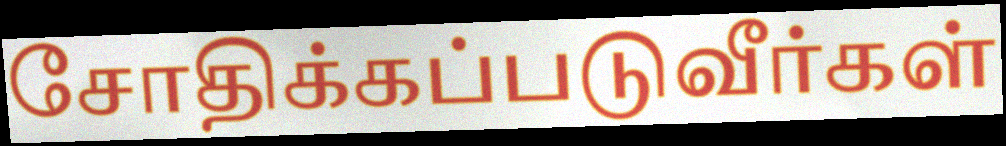
சோதிக்கப்படுவீர்கள்